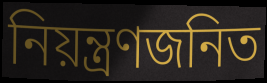
নিয়ন্ত্রণজনিত